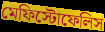
মেফিস্টোফেলিস